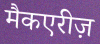
मैकएरीज़